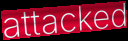
attacked